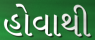
હોવાથી